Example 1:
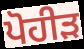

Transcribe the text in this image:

ਪੋਹੀੜ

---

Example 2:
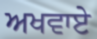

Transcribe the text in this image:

ਅਖਵਾਏ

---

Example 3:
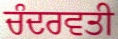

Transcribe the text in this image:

ਚੰਦਰਵਤੀ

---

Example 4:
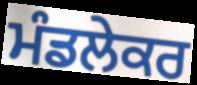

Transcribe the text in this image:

ਮੰਡਲੇਕਰ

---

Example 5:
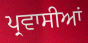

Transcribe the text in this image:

ਪ੍ਰਵਾਸੀਆਂ